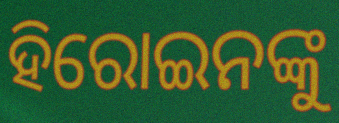
ହିରୋଇନଙ୍କୁ